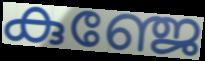
കുഞ്ജേ